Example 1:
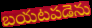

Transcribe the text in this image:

బయటపడెను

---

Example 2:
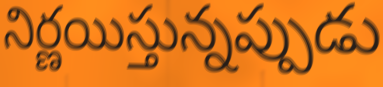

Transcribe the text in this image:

నిర్ణయిస్తున్నప్పుడు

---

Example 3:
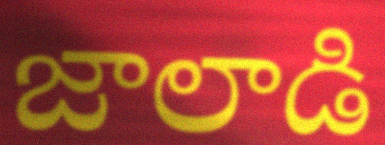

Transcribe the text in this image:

జాలాడి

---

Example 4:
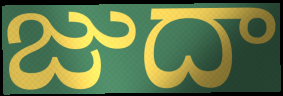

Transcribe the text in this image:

జుదా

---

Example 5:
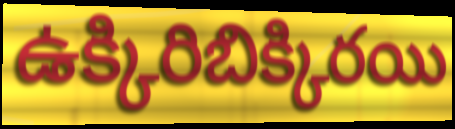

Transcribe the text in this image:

ఉక్కిరిబిక్కిరయి